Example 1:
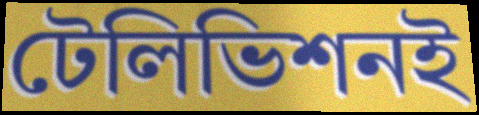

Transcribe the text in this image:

টেলিভিশনই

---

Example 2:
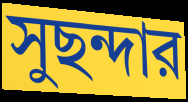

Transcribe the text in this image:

সুছন্দার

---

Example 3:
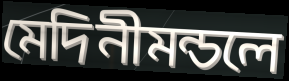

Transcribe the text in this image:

মেদিনীমন্ডলে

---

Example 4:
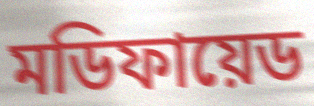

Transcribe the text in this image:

মডিফায়েড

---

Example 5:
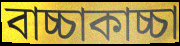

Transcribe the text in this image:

বাচ্চাকাচ্চা